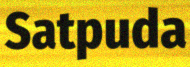
Satpuda